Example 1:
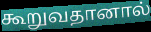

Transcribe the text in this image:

கூறுவதானால்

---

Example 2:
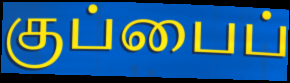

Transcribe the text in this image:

குப்பைப்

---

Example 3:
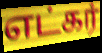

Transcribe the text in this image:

எட்கர்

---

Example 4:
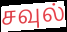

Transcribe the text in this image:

சவுல்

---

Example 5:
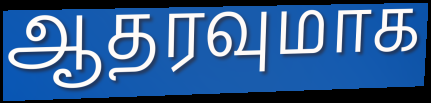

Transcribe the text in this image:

ஆதரவுமாக